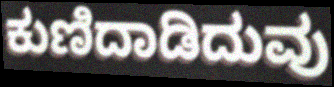
ಕುಣಿದಾಡಿದುವು